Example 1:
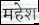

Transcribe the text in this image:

महेश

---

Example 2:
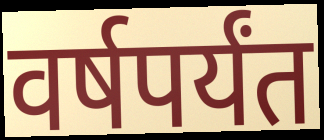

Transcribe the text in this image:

वर्षपर्यंत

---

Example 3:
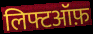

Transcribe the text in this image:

लिफ्टऑफ़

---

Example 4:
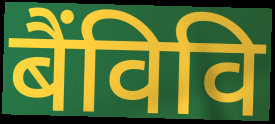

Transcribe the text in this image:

बैंविवि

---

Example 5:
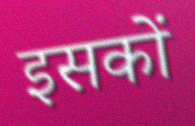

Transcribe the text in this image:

इसकों